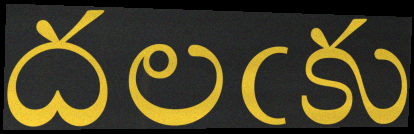
దలఁకు